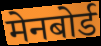
मेनबोर्ड